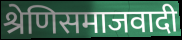
श्रेणिसमाजवादी